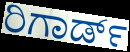
ರಿಗಾರ್ಡ್